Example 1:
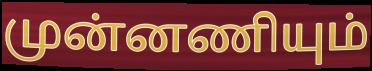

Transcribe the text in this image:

முன்னணியும்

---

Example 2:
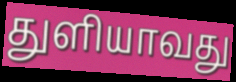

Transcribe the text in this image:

துளியாவது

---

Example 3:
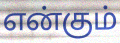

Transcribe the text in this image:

என்கும்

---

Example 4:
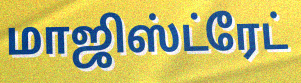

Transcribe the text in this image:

மாஜிஸ்ட்ரேட்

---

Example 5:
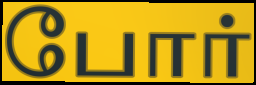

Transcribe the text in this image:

போர்